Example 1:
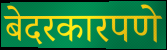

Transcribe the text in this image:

बेदरकारपणे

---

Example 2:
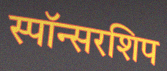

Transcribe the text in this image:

स्पॉन्सरशिप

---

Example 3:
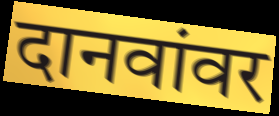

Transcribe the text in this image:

दानवांवर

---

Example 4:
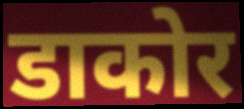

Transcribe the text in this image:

डाकोर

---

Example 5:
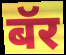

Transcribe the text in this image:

बॅर